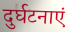
दुर्घटनाएं